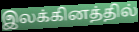
இலக்கினத்தில்